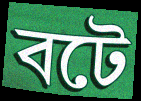
বটে